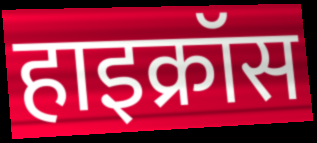
हाइक्रॉस